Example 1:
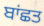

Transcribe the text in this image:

ਬਾਂਛਤ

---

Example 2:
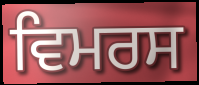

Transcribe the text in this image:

ਵਿਮਰਸ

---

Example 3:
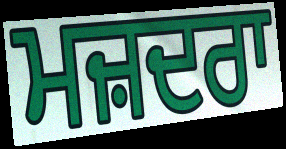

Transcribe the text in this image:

ਮਜ਼ਦਰਾ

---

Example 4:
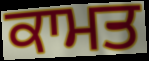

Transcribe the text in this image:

ਕਾਮਤ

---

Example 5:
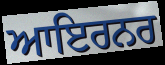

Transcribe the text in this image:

ਆਇਰਨਰ